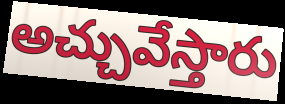
అచ్చువేస్తారు